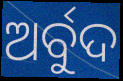
ଅର୍ବୁଦ